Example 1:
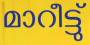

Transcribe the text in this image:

മാറീട്ടു്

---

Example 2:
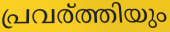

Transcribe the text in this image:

പ്രവര്ത്തിയും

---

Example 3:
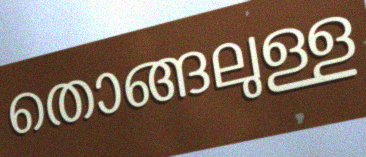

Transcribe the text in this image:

തൊങ്ങലുള്ള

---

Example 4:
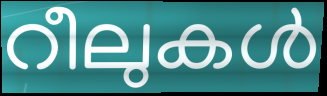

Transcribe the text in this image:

റീലുകൾ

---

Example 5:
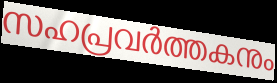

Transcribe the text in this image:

സഹപ്രവർത്തകനും